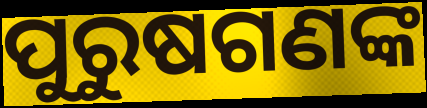
ପୁରୁଷଗଣଙ୍କ